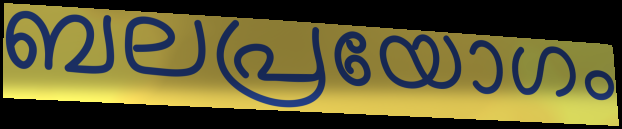
ബലപ്രയോഗം